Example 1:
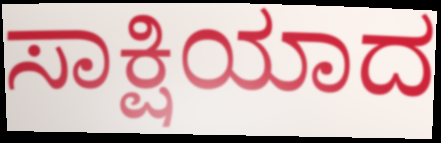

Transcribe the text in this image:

ಸಾಕ್ಷಿಯಾದ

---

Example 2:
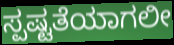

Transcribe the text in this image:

ಸ್ಪಷ್ಟತೆಯಾಗಲೀ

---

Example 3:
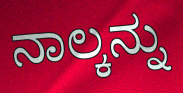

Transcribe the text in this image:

ನಾಲ್ಕನ್ನು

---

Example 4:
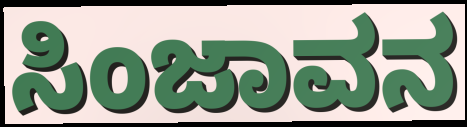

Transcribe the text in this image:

ಸಿಂಜಾವನ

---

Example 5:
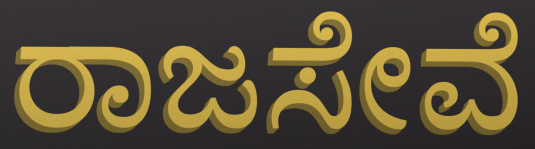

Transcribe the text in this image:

ರಾಜಸೇವೆ